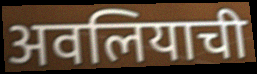
अवलियाची